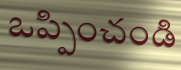
ఒప్పించండి